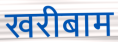
खरीबाम